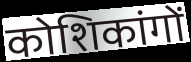
कोशिकांगों